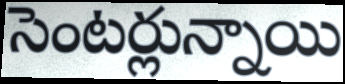
సెంటర్లున్నాయి